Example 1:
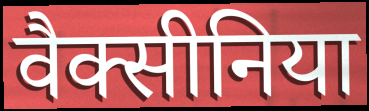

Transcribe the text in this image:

वैक्सीनिया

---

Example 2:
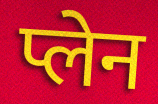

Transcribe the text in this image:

प्लेन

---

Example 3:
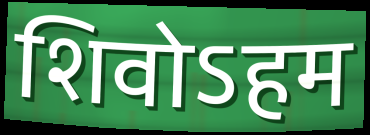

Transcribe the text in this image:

शिवोऽहम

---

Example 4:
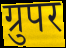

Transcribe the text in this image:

ग्रुपर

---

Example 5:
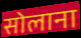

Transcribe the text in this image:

सोलाना